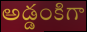
అడ్డంకిగా